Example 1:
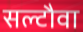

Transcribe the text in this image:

सल्टौवा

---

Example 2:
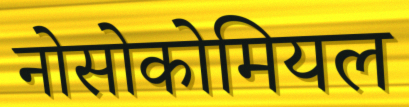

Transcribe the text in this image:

नोसोकोमियल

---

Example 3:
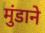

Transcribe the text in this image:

मुंडाने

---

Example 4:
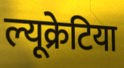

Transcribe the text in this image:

ल्यूक्रेटिया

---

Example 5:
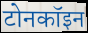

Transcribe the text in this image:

टोनकॉइन